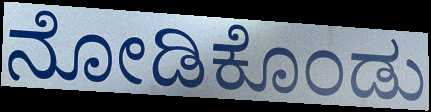
ನೋಡಿಕೊಂಡು